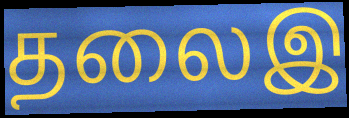
தலைஇ